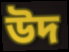
উদ